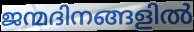
ജന്മദിനങ്ങളിൽ